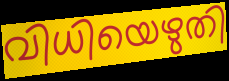
വിധിയെഴുതി